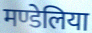
मण्डेलिया